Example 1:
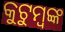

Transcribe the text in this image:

କୁଟୁମ୍ବଙ୍କ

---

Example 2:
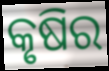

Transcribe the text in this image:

କୃଷିର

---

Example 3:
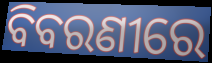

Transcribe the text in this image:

ବିବରଣୀରେ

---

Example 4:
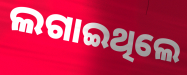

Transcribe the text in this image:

ଲଗାଇଥିଲେ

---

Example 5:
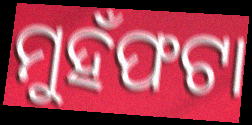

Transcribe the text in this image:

ମୁହଁଫଟା